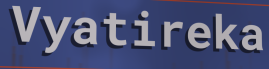
Vyatireka